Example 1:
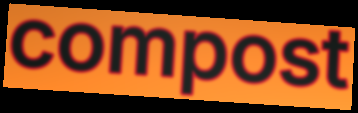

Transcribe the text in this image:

compost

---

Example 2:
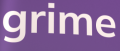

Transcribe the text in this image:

grime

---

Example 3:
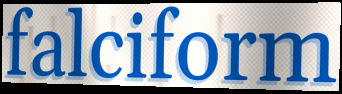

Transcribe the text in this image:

falciform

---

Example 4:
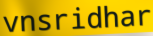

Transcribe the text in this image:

vnsridhar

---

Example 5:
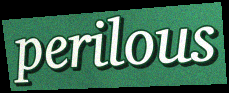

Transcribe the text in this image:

perilous